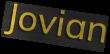
Jovian